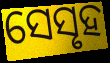
ସେସୃହ